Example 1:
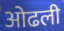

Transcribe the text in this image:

ओढली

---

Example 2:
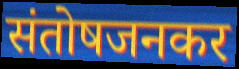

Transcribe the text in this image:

संतोषजनकर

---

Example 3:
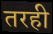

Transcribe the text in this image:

तरही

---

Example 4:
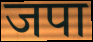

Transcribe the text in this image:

जपा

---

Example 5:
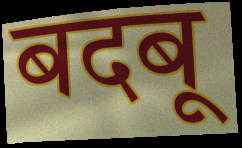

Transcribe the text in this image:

बदबू